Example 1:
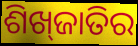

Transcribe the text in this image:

ଶିଖ୍‌ଜାତିର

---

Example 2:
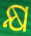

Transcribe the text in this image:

କ୍ଷ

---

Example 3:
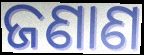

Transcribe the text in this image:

ଜଣାଣ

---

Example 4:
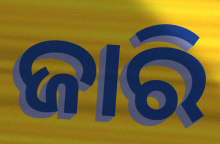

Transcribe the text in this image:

ଜାରି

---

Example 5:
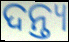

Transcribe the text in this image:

ଦନ୍ତ୍ୟ